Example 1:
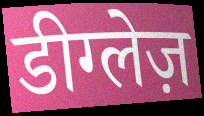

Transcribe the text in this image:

डीग्लेज़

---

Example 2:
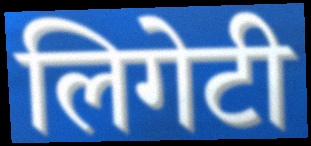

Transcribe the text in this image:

लिगेटी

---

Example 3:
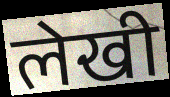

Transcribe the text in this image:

लेखी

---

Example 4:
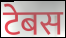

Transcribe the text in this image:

टेबस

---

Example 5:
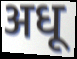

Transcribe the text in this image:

अधू